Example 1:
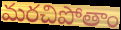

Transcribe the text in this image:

మరచిపోతాం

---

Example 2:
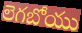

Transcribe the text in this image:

లెగబోయు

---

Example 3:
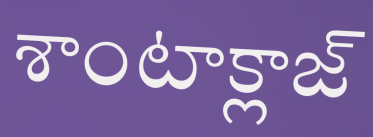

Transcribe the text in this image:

శాంటాక్లాజ్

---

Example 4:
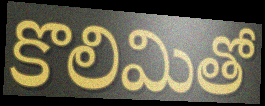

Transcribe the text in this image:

కొలిమితో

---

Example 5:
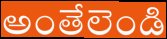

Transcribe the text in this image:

అంతేలెండి